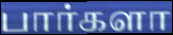
பார்களா